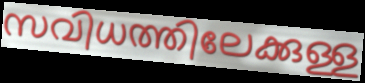
സവിധത്തിലേക്കുള്ള